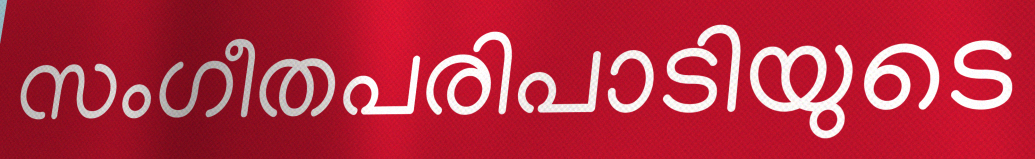
സംഗീതപരിപാടിയുടെ